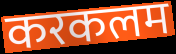
करकलम